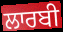
ਲਾਰਬੀ